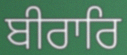
ਬੀਰਾਰਿ